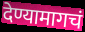
देण्यामागचं